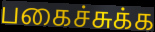
பகைச்சுக்க